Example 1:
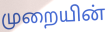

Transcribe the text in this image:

முறையின்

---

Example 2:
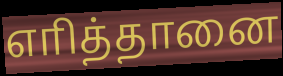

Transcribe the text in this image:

எரித்தானை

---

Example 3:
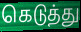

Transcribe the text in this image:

கெடுத்து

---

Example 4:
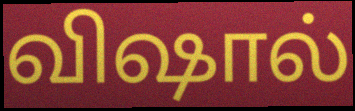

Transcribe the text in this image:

விஷால்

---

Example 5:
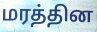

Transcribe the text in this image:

மரத்தின